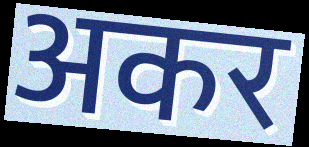
अकर